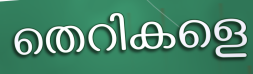
തെറികളെ